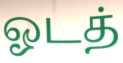
ஓடத்